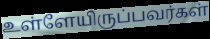
உள்ளேயிருப்பவர்கள்